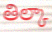
తిల్కా